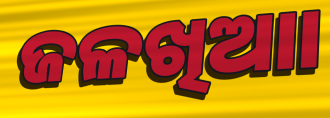
ଜଳଖିଆା